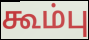
கூம்பு